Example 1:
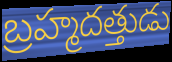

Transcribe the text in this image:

బ్రహ్మదత్తుడు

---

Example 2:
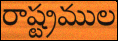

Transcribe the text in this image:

రాష్ట్రముల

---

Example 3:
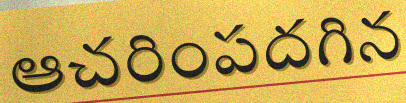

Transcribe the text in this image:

ఆచరింపదగిన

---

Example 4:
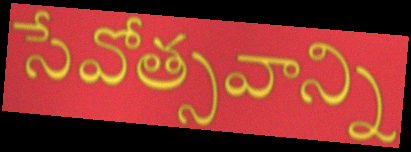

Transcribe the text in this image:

సేవోత్సవాన్ని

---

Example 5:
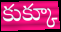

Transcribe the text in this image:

కుక్కూ